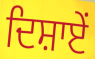
ਦਿਸ਼ਾਏਂ